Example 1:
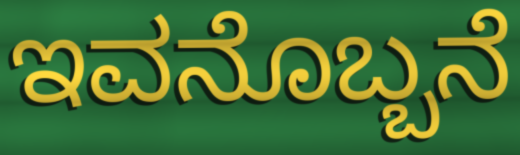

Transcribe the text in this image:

ಇವನೊಬ್ಬನೆ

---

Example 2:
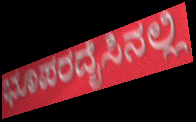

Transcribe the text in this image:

ಭೂಪರದೈಸಿನಲ್ಲಿ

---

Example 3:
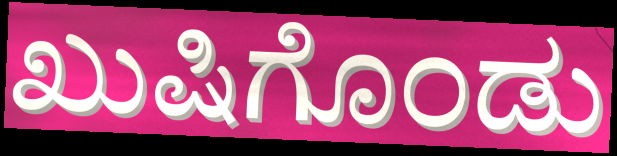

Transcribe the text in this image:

ಖುಷಿಗೊಂಡು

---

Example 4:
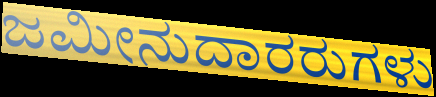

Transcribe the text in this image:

ಜಮೀನುದಾರರುಗಳು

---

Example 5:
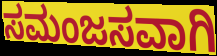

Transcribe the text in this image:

ಸಮಂಜಸವಾಗಿ